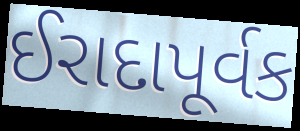
ઈરાદાપૂર્વક